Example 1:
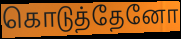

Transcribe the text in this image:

கொடுத்தேனோ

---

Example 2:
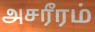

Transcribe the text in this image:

அசரீரம்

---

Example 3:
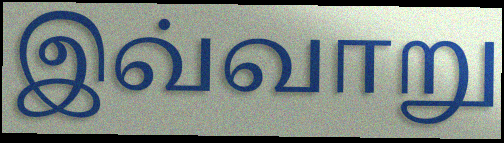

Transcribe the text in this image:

இவ்வாறு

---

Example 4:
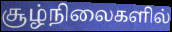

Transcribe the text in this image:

சூழ்நிலைகளில்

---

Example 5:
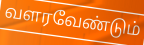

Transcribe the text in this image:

வளரவேண்டும்